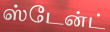
ஸ்டேன்ட்